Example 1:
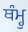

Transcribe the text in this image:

ਥੰਮ੍ਹ੍ਹੁ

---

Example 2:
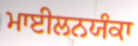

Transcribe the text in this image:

ਮਾਈਲਨਯੰਕਾ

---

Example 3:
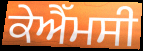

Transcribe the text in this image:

ਕੇਐੱਮਸੀ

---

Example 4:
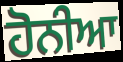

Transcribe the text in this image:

ਹੋਨੀਆ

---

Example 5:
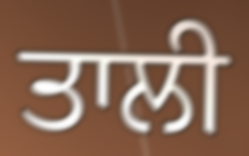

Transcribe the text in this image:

ਤਾਲੀ